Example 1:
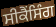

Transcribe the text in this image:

ਸੀਕੈਂਸਿੰਗ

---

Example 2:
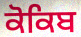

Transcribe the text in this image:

ਕੋਕਿਬ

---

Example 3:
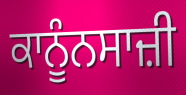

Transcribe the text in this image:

ਕਾਨੂੰਨਸਾਜ਼ੀ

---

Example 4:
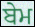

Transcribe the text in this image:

ਬੇਮ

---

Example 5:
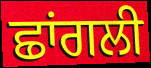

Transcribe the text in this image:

ਛਾਂਗਲੀ